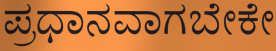
ಪ್ರಧಾನವಾಗಬೇಕೇ